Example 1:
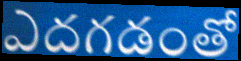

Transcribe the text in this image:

ఎదగడంతో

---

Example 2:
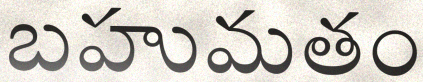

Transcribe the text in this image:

బహుమతం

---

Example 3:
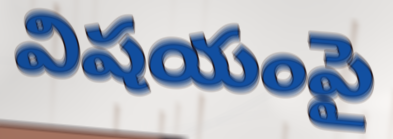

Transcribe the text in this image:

విషయంపై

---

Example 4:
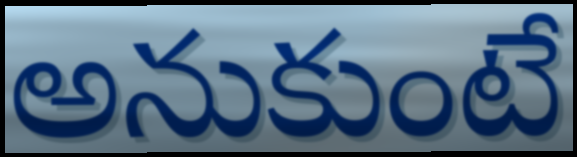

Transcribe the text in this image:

అనుకుంటే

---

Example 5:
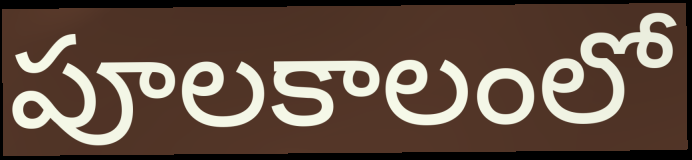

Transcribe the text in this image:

పూలకాలంలో